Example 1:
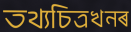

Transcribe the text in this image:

তথ্যচিত্ৰখনৰ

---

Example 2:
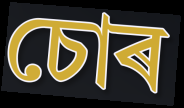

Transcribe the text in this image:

চোৰ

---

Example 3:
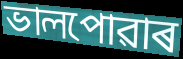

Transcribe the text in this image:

ভালপোৱাৰ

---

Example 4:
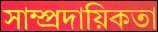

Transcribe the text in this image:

সাম্প্ৰদায়িকতা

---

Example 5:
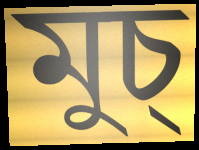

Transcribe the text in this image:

মুচ্